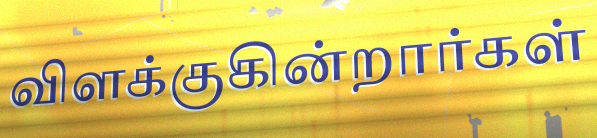
விளக்குகின்றார்கள்